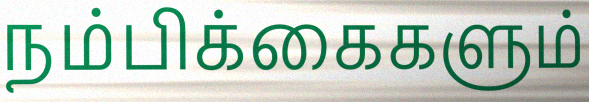
நம்பிக்கைகளும்